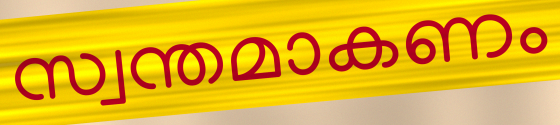
സ്വന്തമാകണം